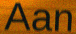
Aan